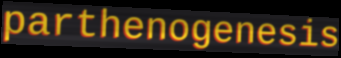
parthenogenesis